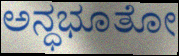
ಅನ್ಧಭೂತೋ